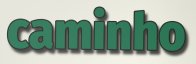
caminho